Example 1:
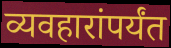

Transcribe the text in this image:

व्यवहारांपर्यंत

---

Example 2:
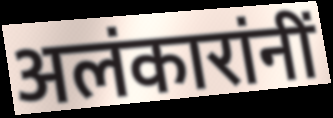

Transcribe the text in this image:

अलंकारांनीं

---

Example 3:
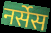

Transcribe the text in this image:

नर्सेस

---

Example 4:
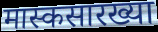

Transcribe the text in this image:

मास्कसारख्या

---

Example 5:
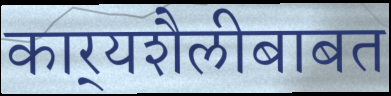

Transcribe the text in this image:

कार्यशैलीबाबत